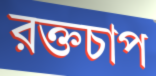
রক্তচাপ